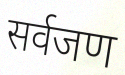
सर्वजण